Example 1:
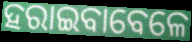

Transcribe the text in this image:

ହରାଇବାବେଳେ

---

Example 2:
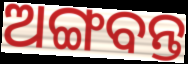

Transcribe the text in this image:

ଅଙ୍ଗବନ୍ତ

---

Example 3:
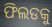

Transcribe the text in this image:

ଫିଲଡକୁ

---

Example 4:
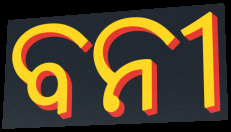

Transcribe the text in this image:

ବନୀ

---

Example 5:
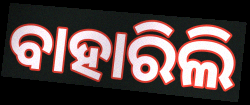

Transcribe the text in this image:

ବାହାରିଲି